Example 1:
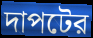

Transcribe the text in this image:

দাপটের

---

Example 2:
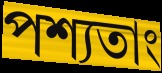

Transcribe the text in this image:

পশ্যতাং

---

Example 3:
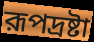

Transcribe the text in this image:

রূপদ্রষ্টা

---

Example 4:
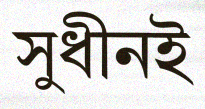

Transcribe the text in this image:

সুধীনই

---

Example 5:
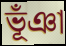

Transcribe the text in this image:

ভূঁঞা